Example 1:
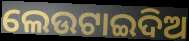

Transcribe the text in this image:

ଲେଉଟାଇଦିଅ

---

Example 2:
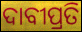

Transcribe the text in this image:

ଦାବୀପ୍ରତି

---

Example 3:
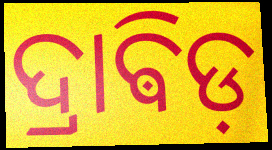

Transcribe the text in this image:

ଦ୍ରାଵିଡ଼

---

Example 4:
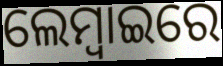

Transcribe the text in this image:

ଲେମ୍ବାଇରେ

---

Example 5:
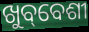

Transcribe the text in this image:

ଖୁବ୍‌ବେଶୀ